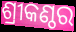
ଶ୍ରୀକଣ୍ଠର